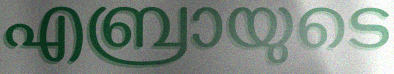
എബ്രായുടെ